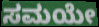
ಸಮಯೇ